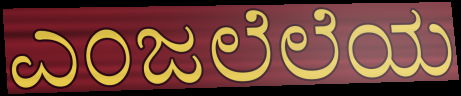
ಎಂಜಲೆಲೆಯ